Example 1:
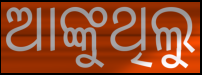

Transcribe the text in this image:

ଆଙ୍କୁଥିଲୁ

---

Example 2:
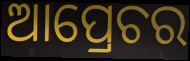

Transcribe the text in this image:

ଆପ୍ରେଚର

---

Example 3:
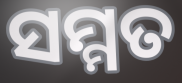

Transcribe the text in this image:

ସମ୍ମତ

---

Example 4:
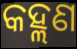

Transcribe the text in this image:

କହ୍ଲଣ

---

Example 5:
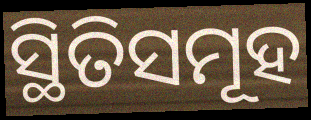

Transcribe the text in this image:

ସ୍ଥିତିସମୂହ